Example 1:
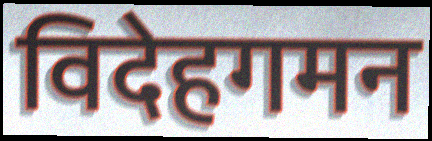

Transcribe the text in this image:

विदेहगमन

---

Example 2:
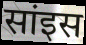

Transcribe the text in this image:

सांइस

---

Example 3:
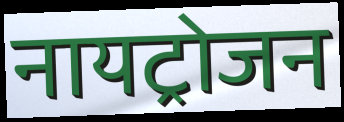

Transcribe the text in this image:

नायट्रोजन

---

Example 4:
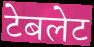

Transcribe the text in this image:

टेबलेट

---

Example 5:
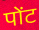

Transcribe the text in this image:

पोंट